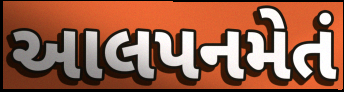
આલપનમેતં